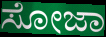
ಸೋಜಾ